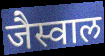
जैस्वाल